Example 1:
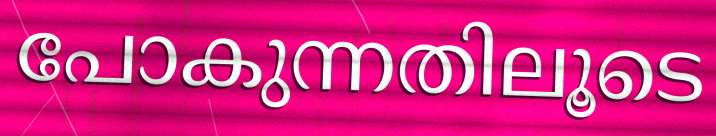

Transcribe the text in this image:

പോകുന്നതിലൂടെ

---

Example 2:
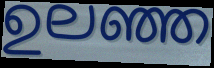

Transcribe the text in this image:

ഉലഞ്ഞ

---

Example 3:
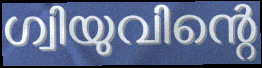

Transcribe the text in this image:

ഗ്വിയുവിന്റെ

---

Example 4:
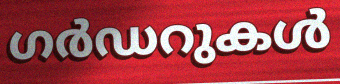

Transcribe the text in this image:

ഗർഡറുകൾ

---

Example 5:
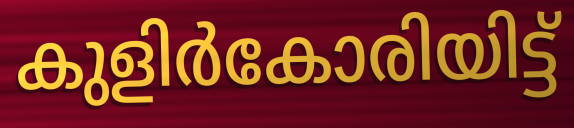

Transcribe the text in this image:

കുളിർകോരിയിട്ട്